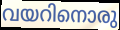
വയറിനൊരു